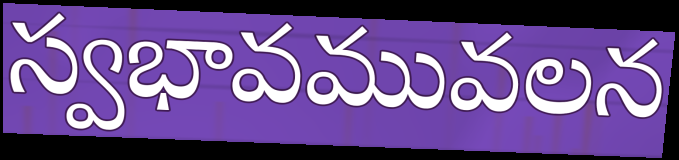
స్వభావమువలన